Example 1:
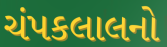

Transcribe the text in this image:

ચંપકલાલનો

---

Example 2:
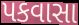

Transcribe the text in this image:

પકવાસા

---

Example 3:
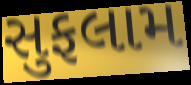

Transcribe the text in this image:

સુફલામ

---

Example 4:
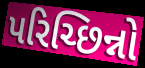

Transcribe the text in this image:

પરિચ્છિન્નો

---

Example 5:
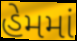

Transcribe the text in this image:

હેમમાં